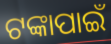
ଟଙ୍କାପାଇଁ